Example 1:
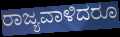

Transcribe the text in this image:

ರಾಜ್ಯವಾಳಿದರೂ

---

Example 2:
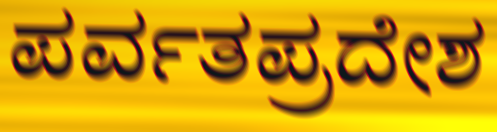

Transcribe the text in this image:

ಪರ್ವತಪ್ರದೇಶ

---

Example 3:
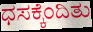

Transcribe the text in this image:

ಧಸಕ್ಕೆಂದಿತು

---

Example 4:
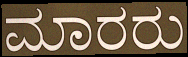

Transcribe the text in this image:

ಮಾರರು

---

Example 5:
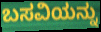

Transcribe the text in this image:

ಬಸವಿಯನ್ನು